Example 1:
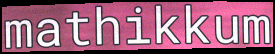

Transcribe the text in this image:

mathikkum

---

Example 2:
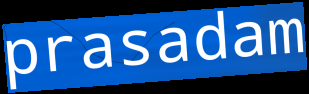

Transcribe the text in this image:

prasadam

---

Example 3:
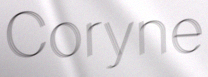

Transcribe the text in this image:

Coryne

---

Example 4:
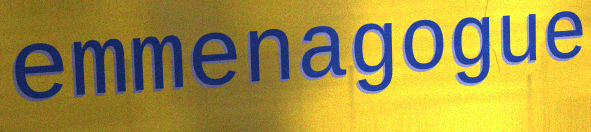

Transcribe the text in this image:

emmenagogue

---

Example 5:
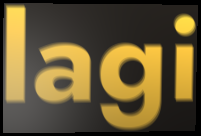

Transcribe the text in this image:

lagi